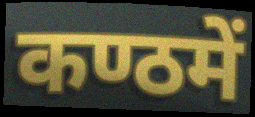
कण्ठमें